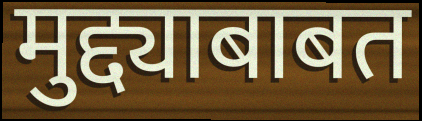
मुद्द्याबाबत